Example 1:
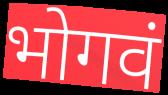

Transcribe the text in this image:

भोगवं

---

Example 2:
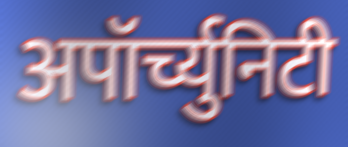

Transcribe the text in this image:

अपॉर्च्युनिटी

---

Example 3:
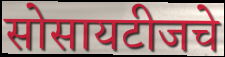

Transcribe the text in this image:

सोसायटीजचे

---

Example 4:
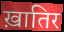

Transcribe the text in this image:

ख़ातिर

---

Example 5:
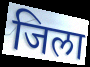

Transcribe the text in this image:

जिला